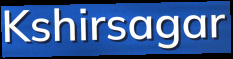
Kshirsagar